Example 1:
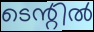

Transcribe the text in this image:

ടെന്റിൽ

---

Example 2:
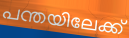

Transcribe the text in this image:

പന്തയിലേക്ക്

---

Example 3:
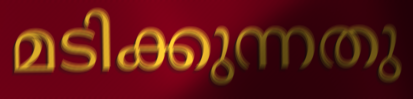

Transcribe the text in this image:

മടിക്കുന്നതു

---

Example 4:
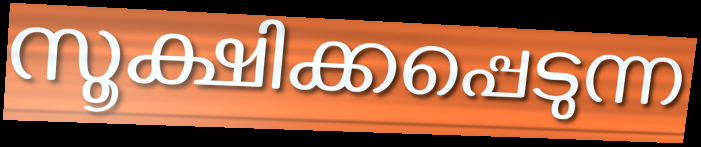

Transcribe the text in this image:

സൂക്ഷിക്കപ്പെടുന്ന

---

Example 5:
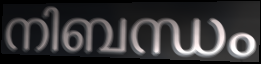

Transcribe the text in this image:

നിബന്ധം